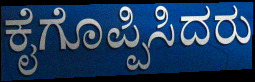
ಕೈಗೊಪ್ಪಿಸಿದರು